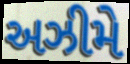
અઝીમે